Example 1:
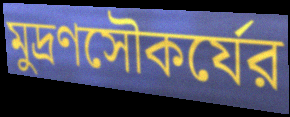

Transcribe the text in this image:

মুদ্রণসৌকর্যের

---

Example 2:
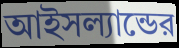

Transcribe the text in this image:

আইসল্যান্ডের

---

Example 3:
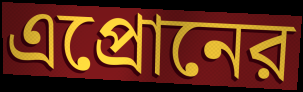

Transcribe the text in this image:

এপ্রোনের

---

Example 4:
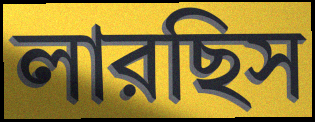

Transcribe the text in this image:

লারছিস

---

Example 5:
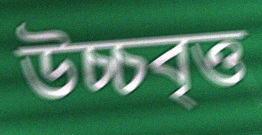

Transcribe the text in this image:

উচ্চবৃত্ত